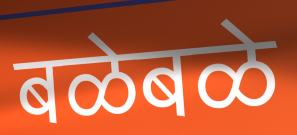
बळेबळे